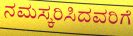
ನಮಸ್ಕರಿಸಿದವರಿಗೆ